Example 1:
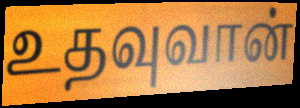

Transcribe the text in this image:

உதவுவான்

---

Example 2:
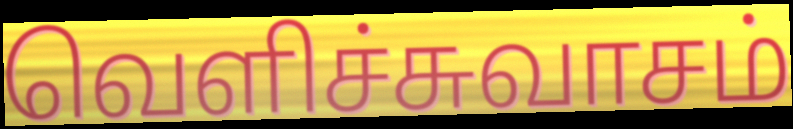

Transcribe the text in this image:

வெளிச்சுவாசம்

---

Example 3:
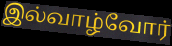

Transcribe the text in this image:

இல்வாழ்வோர்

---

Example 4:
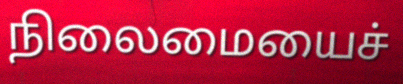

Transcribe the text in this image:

நிலைமையைச்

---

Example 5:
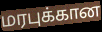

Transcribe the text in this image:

மரபுக்கான